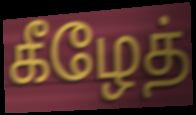
கீழேத்